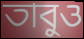
তাবুও